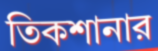
তিকশানার